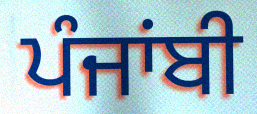
ਪੰਜਾਂਬੀ